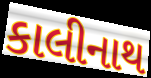
કાલીનાથ